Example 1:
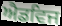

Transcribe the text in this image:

ਐਡਵਿਜ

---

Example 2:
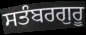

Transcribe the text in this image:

ਸਤੰਬਰਗੁਰੂ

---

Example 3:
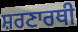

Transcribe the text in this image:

ਸ਼ਰਣਾਰਥੀ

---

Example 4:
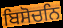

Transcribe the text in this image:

ਬਿਸੋਚਨਿ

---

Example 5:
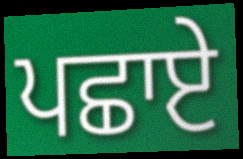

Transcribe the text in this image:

ਪਛਾਏ